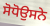
ਸੋਧੋਉਸਨੇ